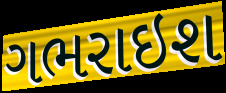
ગભરાઇશ